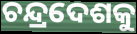
ଚନ୍ଦ୍ରଦେଶକୁ